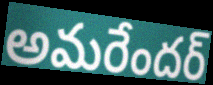
అమరేందర్